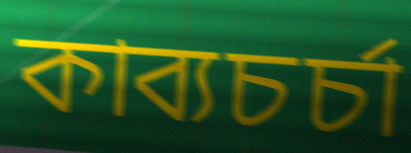
কাব্যচর্চা